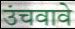
उंचवावे